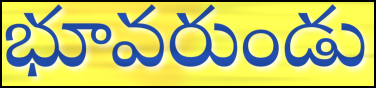
భూవరుండు